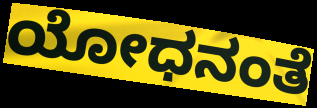
ಯೋಧನಂತೆ